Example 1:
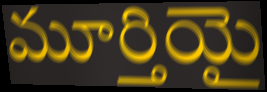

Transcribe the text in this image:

మూర్తియై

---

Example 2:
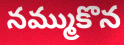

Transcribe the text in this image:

నమ్ముకొన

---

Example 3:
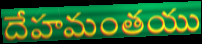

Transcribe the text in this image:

దేహమంతయు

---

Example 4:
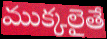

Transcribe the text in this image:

ముక్కలైతే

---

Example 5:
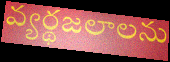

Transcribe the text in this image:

వ్యర్థజలాలను